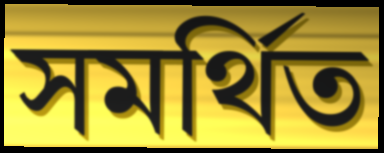
সমর্থিত